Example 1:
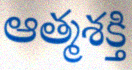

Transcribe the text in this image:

ఆత్మశక్తి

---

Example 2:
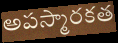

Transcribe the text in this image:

అపస్మారకత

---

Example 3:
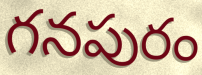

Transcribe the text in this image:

గనపురం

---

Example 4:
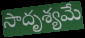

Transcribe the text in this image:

సాదృశ్యమే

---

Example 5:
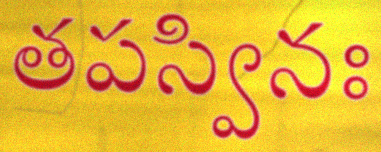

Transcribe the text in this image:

తపస్వినః